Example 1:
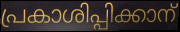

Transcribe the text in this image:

പ്രകാശിപ്പിക്കാന്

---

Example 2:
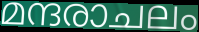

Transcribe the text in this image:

മന്ദരാചലം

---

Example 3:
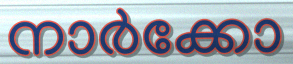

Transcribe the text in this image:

നാർക്കോ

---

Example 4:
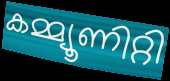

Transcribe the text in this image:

കമ്മ്യൂണിറ്റി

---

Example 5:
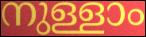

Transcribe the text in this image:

നുള്ളാം